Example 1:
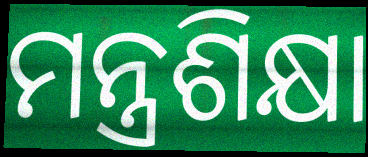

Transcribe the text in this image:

ମନ୍ତ୍ରଶିକ୍ଷା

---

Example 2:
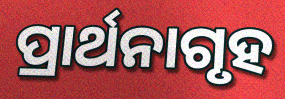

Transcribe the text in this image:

ପ୍ରାର୍ଥନାଗୃହ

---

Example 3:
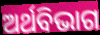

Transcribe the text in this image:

ଅର୍ଥବିଭାଗ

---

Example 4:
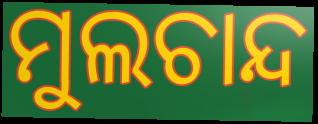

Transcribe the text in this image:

ମୁଲଚାନ୍ଦ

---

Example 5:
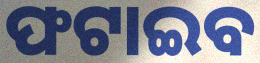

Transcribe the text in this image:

ଫଟାଇବ